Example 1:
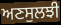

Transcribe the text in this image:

ਅਣਸੁਲਝੀ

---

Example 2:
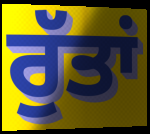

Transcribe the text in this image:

ਰੁੱਤਾਂ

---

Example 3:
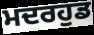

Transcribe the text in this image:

ਮਦਰਹੁਡ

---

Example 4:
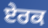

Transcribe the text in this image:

ਏਰਕ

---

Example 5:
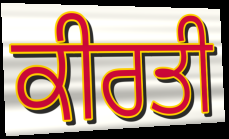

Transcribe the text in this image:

ਕੀਰਤੀ